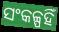
ସଂକଳ୍ପହିଁ